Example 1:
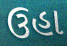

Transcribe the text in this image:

ઉહા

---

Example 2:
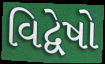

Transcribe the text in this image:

વિદ્વેષો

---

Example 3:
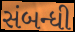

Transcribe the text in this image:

સંબન્ધી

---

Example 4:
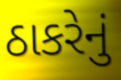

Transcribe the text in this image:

ઠાકરેનું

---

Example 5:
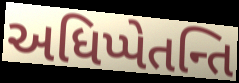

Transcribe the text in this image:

અધિપ્પેતન્તિ